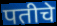
पतीचे